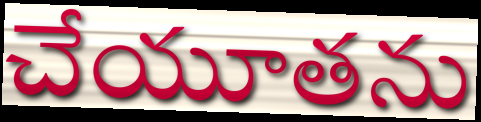
చేయూతను